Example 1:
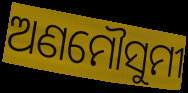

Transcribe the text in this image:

ଅଣମୌସୁମୀ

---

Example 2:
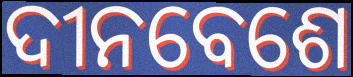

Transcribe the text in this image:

ଦୀନବେଶେ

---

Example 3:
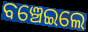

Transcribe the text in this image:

ବଞ୍ଚେଇଲେ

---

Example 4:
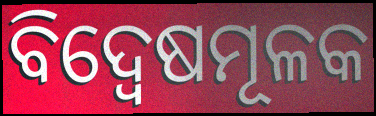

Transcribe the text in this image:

ବିଦ୍ୱେଷମୂଳକ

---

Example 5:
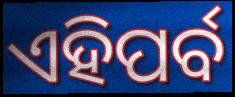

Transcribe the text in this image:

ଏହିପର୍ବ